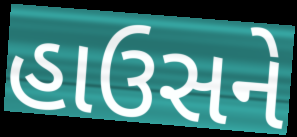
હાઉસને